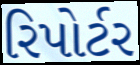
રિપોર્ટર